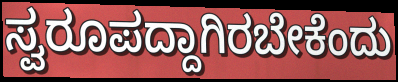
ಸ್ವರೂಪದ್ದಾಗಿರಬೇಕೆಂದು